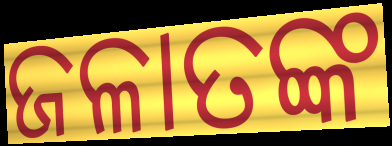
ଜଳାତଙ୍କ